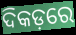
ଦିକଡ଼ରେ